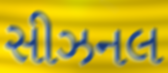
સીઝનલ